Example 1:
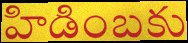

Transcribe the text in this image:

హిడింబకు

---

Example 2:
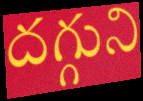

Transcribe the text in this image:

దగ్గుని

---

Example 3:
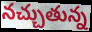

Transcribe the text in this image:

నచ్చుతున్న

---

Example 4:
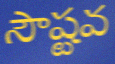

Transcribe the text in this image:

సౌష్టవ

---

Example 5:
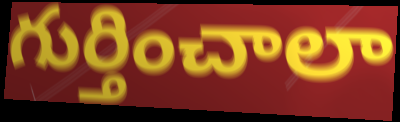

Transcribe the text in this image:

గుర్తించాలా